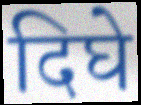
दिघे